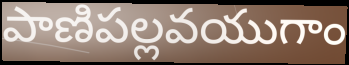
పాణిపల్లవయుగాం